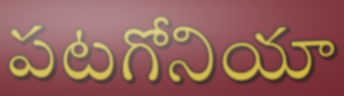
పటగోనియా